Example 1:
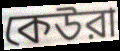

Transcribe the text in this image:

কেউরা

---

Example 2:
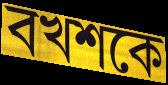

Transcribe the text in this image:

বখশকে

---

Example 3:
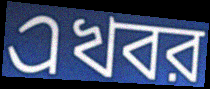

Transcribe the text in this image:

এখবর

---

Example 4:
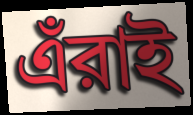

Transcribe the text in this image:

এঁরাই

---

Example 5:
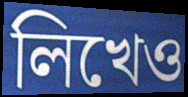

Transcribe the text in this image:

লিখেও